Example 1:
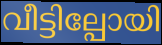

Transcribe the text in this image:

വീട്ടില്പോയി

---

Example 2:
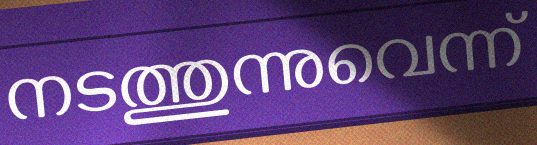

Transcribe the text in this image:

നടത്തുന്നുവെന്ന്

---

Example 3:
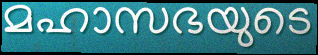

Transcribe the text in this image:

മഹാസഭയുടെ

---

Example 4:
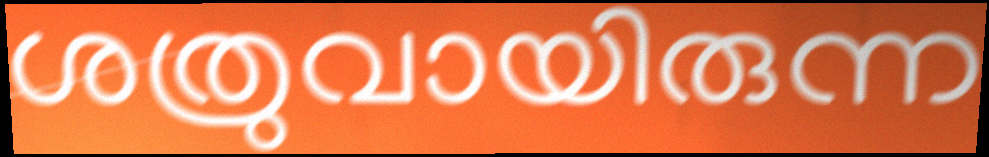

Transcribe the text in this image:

ശത്രുവായിരുന്ന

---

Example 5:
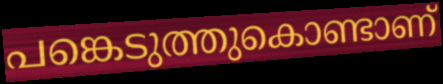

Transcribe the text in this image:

പങ്കെടുത്തുകൊണ്ടാണ്